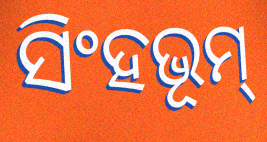
ସିଂହଭୂମ୍